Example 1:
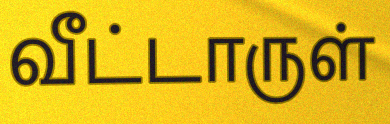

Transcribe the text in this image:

வீட்டாருள்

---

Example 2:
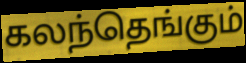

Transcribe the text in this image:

கலந்தெங்கும்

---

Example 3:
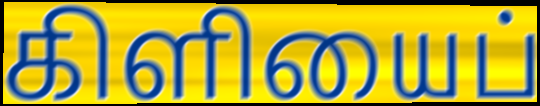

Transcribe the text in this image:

கிளியைப்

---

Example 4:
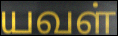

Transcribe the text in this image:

யவள்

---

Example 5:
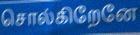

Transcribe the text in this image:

சொல்கிறேனே